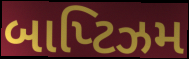
બાપ્ટિઝમ